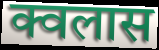
क्वलास